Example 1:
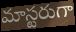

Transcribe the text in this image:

మాస్టరుగా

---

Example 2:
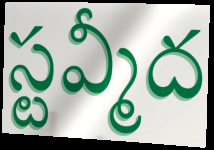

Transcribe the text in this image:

స్టవ్మీద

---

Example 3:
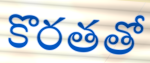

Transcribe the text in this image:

కొరతతో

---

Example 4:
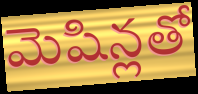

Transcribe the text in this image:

మెషిన్లతో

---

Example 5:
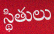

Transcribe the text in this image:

స్థితులు